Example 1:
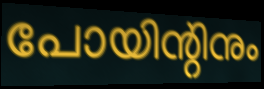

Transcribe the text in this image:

പോയിന്റിനും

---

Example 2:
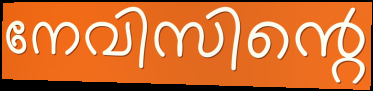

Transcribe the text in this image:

നേവിസിന്റെ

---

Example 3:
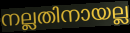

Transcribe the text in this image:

നല്ലതിനായല്ല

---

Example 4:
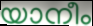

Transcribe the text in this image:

യാനീം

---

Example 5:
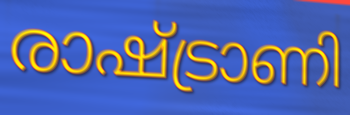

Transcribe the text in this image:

രാഷ്ട്രാണി